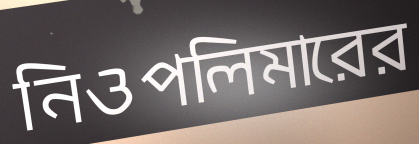
নিওপলিমারের